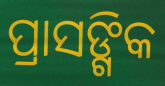
ପ୍ରାସଙ୍ଗିକ